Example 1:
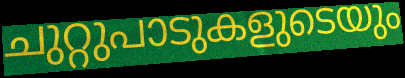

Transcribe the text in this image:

ചുറ്റുപാടുകളുടെയും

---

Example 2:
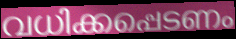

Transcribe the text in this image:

വധിക്കപ്പെടണം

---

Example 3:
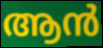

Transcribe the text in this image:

ആൻ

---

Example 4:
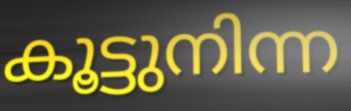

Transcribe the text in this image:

കൂട്ടുനിന്ന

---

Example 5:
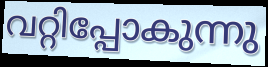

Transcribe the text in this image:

വറ്റിപ്പോകുന്നു